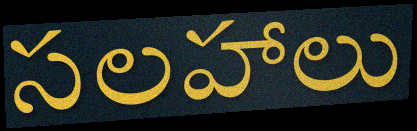
సలహాలు